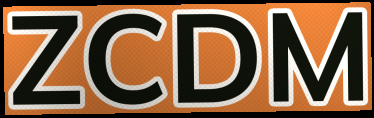
ZCDM